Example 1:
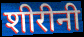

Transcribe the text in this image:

शीरीनी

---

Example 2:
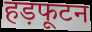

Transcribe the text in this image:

हड़फूटन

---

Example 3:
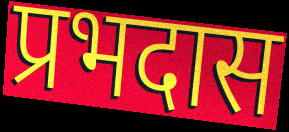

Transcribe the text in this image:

प्रभदास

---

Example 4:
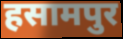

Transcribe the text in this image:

हसामपुर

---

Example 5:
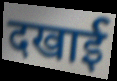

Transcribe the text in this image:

दखाई